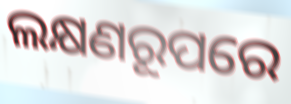
ଲକ୍ଷଣରୂପରେ